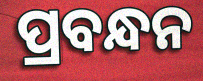
ପ୍ରବନ୍ଧନ